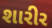
શારીર